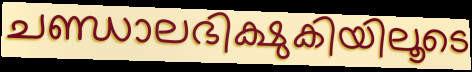
ചണ്ഡാലഭിക്ഷുകിയിലൂടെ